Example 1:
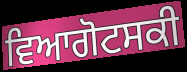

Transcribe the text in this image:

ਵਿਆਗੋਟਸਕੀ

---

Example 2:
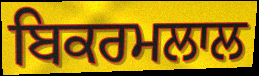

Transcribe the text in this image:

ਬਿਕਰਮਲਾਲ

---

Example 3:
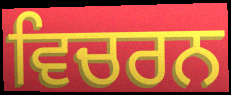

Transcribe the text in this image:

ਵਿਚਰਨ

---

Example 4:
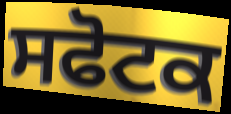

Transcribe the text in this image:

ਸਫੋਟਕ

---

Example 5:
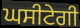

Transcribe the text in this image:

ਘਸੀਟੇਗੀ